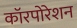
कॉरपोरेशन